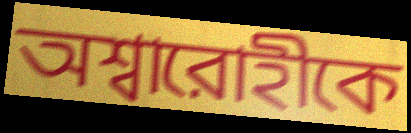
অশ্বারোহীকে